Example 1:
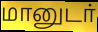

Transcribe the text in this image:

மானுடர்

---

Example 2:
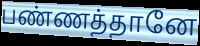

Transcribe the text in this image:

பண்ணத்தானே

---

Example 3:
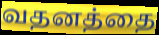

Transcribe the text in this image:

வதனத்தை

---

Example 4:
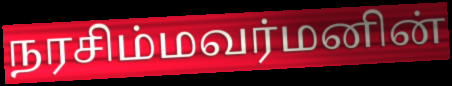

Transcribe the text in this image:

நரசிம்மவர்மனின்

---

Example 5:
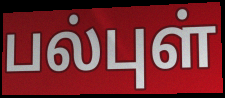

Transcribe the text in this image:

பல்புள்